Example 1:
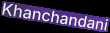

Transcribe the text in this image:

Khanchandani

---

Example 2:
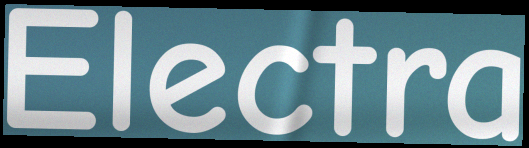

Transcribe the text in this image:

Electra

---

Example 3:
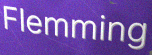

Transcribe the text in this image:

Flemming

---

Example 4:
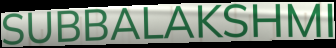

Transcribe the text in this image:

SUBBALAKSHMI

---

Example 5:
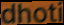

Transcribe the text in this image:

dhoti